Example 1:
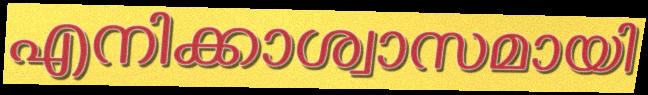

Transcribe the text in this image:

എനിക്കാശ്വാസമായി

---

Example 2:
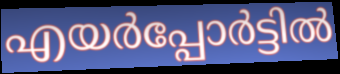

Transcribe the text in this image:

എയർപ്പോർട്ടിൽ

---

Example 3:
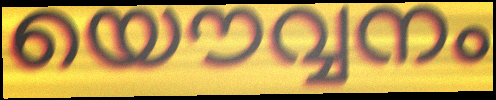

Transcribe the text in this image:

യൌവ്വനം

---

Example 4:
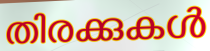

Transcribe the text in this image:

തിരക്കുകൾ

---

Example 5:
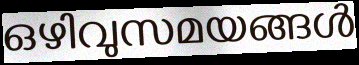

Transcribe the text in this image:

ഒഴിവുസമയങ്ങൾ